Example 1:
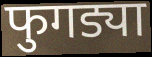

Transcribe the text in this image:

फुगड्या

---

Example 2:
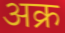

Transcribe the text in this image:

अक्र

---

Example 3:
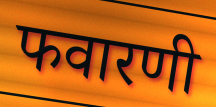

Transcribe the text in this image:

फवारणी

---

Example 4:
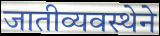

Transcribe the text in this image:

जातीव्यवस्थेने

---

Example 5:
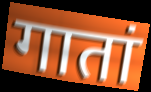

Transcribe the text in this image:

गातां